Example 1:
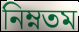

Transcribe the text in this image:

নিম্নতম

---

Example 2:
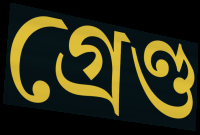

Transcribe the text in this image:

গ্ৰেণ্ড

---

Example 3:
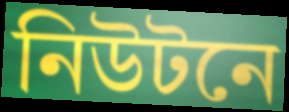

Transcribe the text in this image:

নিউটনে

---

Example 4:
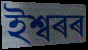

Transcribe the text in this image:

ইশ্বৰৰ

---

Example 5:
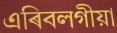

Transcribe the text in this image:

এৰিবলগীয়া